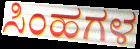
ಸಿಂಹಗಳ